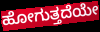
ಹೋಗುತ್ತದೆಯೇ